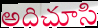
అదిచూసి